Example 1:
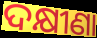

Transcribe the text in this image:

ଦକ୍ଷୀଣା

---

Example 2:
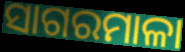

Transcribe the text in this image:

ସାଗରମାଳା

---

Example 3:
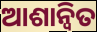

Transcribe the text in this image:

ଆଶାନ୍ବିତ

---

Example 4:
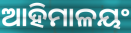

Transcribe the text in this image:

ଆହିମାଳୟଂ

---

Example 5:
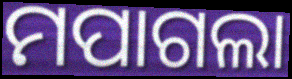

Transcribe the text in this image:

ମପାଗଲା